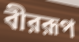
বীররূপ